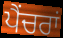
ਪੈਂਚਰਾਂ